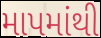
માપમાંથી